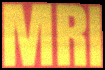
MRI